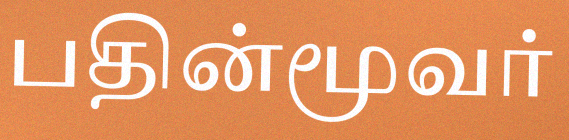
பதின்மூவர்